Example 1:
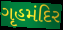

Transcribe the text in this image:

ગૃહમંદિર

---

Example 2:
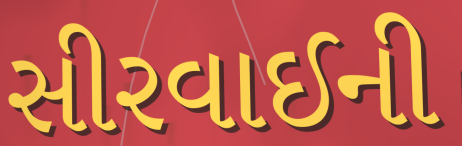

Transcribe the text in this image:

સીરવાઈની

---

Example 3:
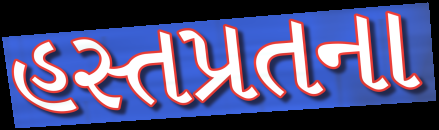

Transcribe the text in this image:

હસ્તપ્રતના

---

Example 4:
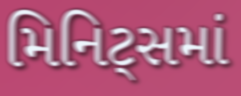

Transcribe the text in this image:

મિનિટ્સમાં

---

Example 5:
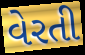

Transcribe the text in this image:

વેરતી